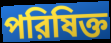
পরিষিক্ত